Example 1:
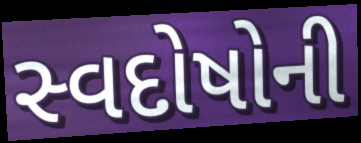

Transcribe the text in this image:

સ્વદોષોની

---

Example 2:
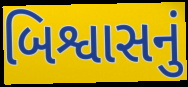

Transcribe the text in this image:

બિશ્વાસનું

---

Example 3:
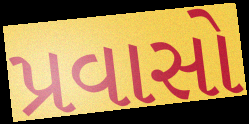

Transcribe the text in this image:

પ્રવાસો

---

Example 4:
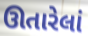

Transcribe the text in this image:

ઊતારેલાં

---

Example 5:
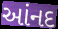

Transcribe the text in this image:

આંનદ